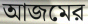
আজমের